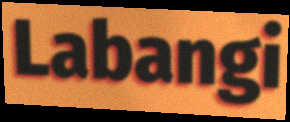
Labangi